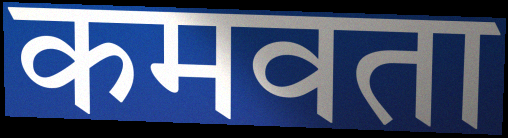
कमवता